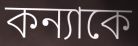
কন্যাকে